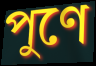
পুণে